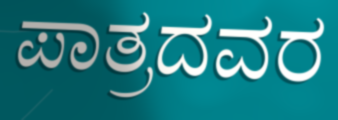
ಪಾತ್ರದವರ